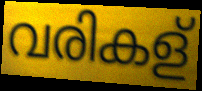
വരികള്